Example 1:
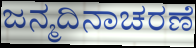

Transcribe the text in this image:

ಜನ್ಮದಿನಾಚರಣೆ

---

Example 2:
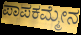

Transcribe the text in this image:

ಪಾಪಕಮ್ಮೇನ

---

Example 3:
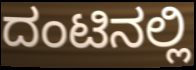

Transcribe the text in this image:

ದಂಟಿನಲ್ಲಿ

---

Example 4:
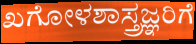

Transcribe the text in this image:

ಖಗೋಳಶಾಸ್ತ್ರಜ್ಞರಿಗೆ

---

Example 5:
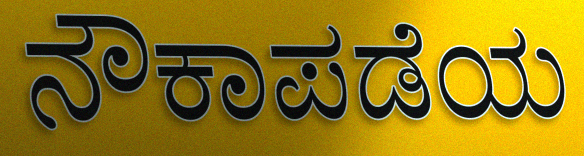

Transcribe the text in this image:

ನೌಕಾಪಡೆಯ